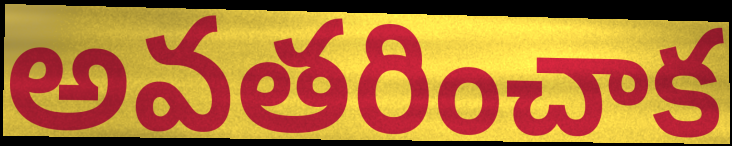
అవతరించాక